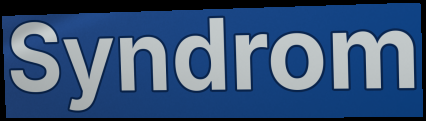
Syndrom